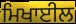
ਮਿਖਾਈਲ